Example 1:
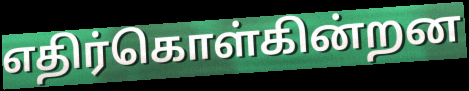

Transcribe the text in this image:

எதிர்கொள்கின்றன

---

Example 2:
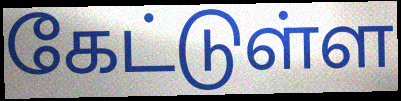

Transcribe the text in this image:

கேட்டுள்ள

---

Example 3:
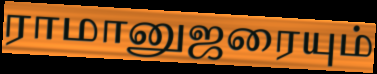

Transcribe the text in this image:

ராமானுஜரையும்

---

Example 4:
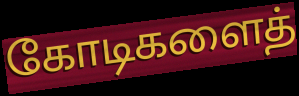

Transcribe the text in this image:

கோடிகளைத்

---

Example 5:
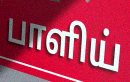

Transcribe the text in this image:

பாளிய்